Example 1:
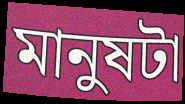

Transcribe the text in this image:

মানুষটা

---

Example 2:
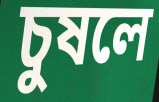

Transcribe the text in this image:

চুষলে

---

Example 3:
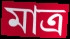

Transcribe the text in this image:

মাত্র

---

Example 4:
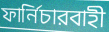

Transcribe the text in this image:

ফার্নিচারবাহী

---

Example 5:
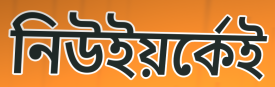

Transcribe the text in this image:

নিউইয়র্কেই